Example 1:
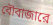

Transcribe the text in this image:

বৌবাজারে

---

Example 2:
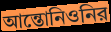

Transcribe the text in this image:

আন্তোনিওনির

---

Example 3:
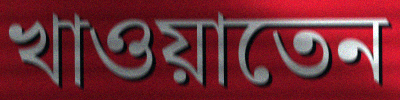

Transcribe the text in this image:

খাওয়াতেন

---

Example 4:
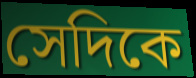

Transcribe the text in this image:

সেদিকে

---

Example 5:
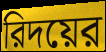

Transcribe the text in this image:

রিদয়ের